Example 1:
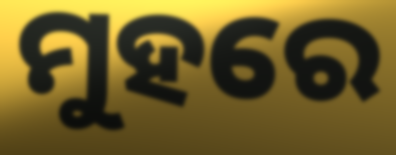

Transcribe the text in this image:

ମୁହରେ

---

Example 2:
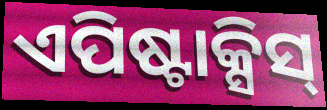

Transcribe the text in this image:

ଏପିଷ୍ଟାକ୍ସିସ୍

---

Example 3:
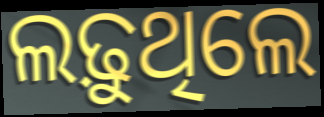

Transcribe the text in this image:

ଲଢ଼ୁଥିଲେ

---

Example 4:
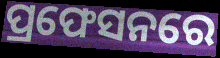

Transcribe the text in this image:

ପ୍ରଫେସନରେ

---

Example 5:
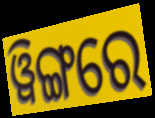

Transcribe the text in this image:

ୱିଙ୍ଗରେ